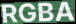
RGBA